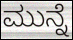
ಮುನ್ನೆ